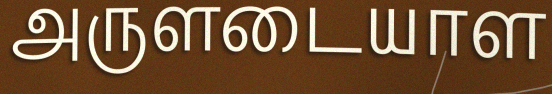
அருளடையாள